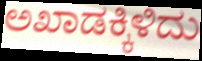
ಅಖಾಡಕ್ಕಿಳಿದು